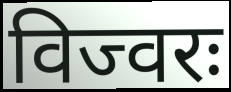
विज्वरः